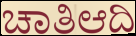
ಚಾತಿಆದಿ